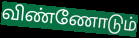
விண்ணோடும்